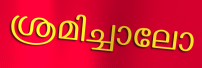
ശ്രമിച്ചാലോ